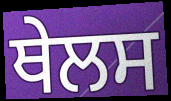
ਥੇਲਸ